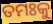
ତମଃକୁ